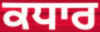
ਕਧਾਰ